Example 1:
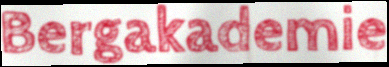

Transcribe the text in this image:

Bergakademie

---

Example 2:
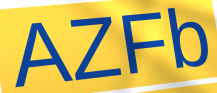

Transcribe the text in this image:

AZFb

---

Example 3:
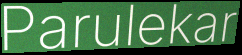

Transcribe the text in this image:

Parulekar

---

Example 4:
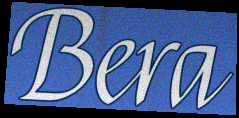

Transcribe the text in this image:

Bera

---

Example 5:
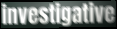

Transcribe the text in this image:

investigative